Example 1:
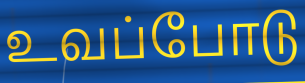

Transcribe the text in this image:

உவப்போடு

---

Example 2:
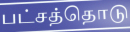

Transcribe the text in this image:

பட்சத்தொடு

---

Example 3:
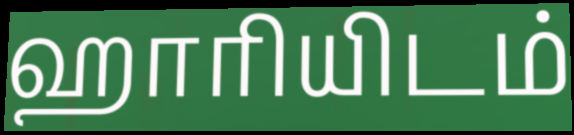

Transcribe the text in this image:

ஹாரியிடம்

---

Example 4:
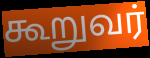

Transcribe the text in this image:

கூறுவர்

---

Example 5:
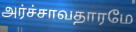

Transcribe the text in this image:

அர்ச்சாவதாரமே